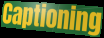
Captioning